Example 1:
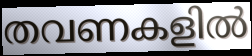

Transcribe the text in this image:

തവണകളിൽ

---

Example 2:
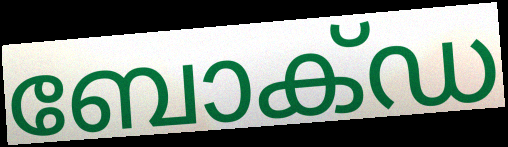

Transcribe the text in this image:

ബോക്ഡ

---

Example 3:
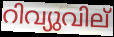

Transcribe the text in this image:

റിവ്യുവില്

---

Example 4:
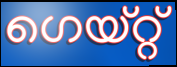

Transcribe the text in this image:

ഗെയ്റ്റ്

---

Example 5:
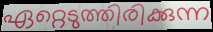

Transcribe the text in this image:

ഏറ്റെടുത്തിരിക്കുന്ന